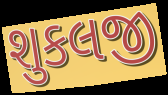
શુકલજી